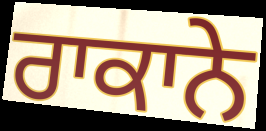
ਰਾਕਾਨੇ